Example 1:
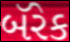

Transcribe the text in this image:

બૅરેક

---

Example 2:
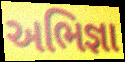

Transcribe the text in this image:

અભિજ્ઞા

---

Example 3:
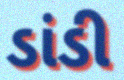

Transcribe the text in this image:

ડાંડી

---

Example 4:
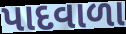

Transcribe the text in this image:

પાદવાળા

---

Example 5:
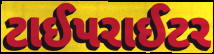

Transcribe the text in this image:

ટાઈપરાઈટર